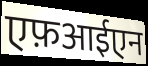
एफ़आईएन